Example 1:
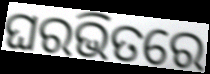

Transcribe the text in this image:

ଘରଭିତରେ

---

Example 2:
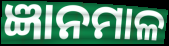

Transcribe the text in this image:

ଜ୍ଞାନମାଳ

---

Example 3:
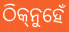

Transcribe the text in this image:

ଠିକ୍‌ନୁହେଁ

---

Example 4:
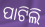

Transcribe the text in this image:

ପାଟିଲି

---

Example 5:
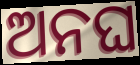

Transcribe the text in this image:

ଅନଘ